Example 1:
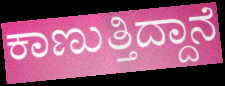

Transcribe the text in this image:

ಕಾಣುತ್ತಿದ್ದಾನೆ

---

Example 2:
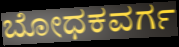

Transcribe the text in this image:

ಬೋಧಕವರ್ಗ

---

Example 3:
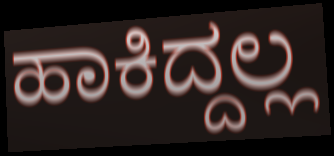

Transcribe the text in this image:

ಹಾಕಿದ್ದಲ್ಲ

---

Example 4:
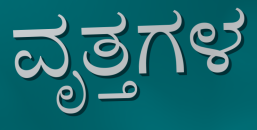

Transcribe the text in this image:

ವೃತ್ತಗಳ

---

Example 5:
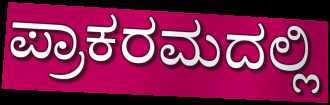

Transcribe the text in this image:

ಪ್ರಾಕರಮದಲ್ಲಿ